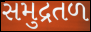
સમુદ્રતળ